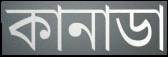
কানাডা